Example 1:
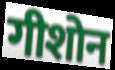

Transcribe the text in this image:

गीशोन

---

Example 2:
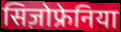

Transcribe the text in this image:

सिज़ोफ्रेनिया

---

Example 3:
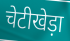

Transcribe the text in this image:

चेटीखेड़ा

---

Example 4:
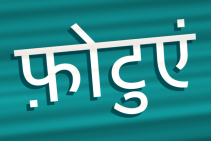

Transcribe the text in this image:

फ़ोटुएं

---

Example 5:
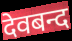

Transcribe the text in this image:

देवबन्द